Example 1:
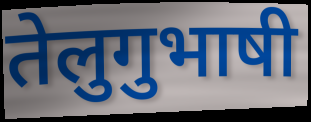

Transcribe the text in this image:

तेलुगुभाषी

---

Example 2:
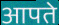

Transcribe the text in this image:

आपते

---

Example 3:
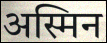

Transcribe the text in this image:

अस्मिन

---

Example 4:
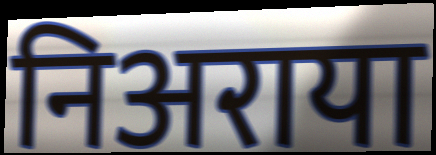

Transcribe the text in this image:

निअराया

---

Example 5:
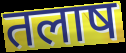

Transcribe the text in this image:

तलाष